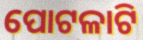
ପୋଟଳାଟି